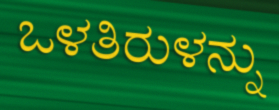
ಒಳತಿರುಳನ್ನು